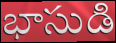
భాసుడి